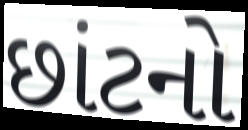
છાંટનો